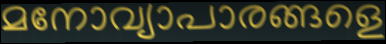
മനോവ്യാപാരങ്ങളെ